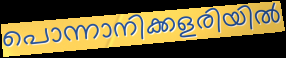
പൊന്നാനിക്കളരിയിൽ